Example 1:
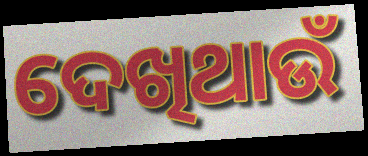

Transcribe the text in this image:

ଦେଖିଥାଉଁ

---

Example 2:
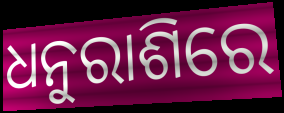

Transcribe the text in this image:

ଧନୁରାଶିରେ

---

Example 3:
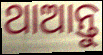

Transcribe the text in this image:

ଥାଆନ୍ତୁ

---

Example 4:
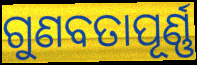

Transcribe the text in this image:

ଗୁଣବତାପୂର୍ଣ୍ଣ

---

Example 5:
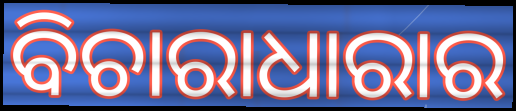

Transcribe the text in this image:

ବିଚାରାଧାରାର